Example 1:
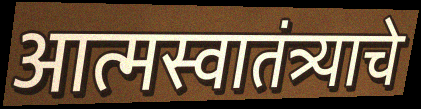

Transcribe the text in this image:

आत्मस्वातंत्र्याचे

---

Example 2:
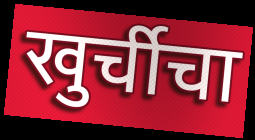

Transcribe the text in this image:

खुर्चीचा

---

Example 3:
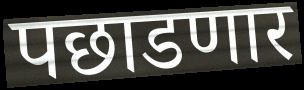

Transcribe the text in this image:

पछाडणार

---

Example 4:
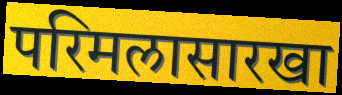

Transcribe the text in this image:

परिमलासारखा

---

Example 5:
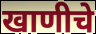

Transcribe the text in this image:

खाणीचे